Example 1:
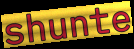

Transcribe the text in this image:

shunte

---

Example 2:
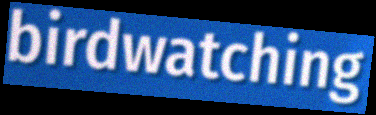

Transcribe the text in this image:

birdwatching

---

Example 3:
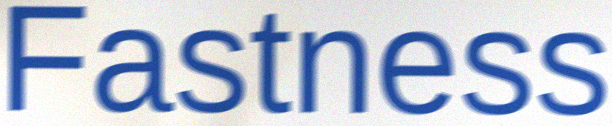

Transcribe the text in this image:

Fastness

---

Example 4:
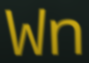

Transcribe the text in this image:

Wn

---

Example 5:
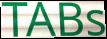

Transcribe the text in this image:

TABs